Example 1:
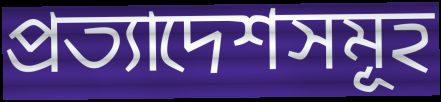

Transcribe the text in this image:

প্রত্যাদেশসমূহ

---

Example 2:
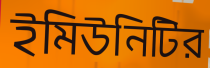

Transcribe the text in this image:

ইমিউনিটির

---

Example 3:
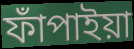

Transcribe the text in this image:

ফাঁপাইয়া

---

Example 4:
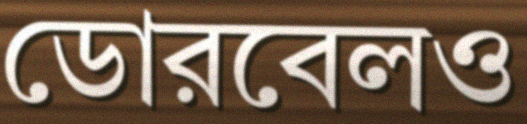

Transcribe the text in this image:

ডোরবেলও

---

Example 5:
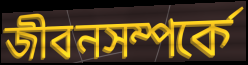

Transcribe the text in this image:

জীবনসম্পর্কে